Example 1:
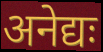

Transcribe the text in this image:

अनेद्यः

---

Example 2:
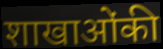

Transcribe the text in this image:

शाखाओंकी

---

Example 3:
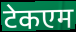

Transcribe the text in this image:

टेकएम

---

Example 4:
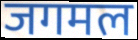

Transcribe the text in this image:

जगमल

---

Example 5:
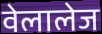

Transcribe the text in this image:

वेलालेज